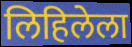
लिहिलेला